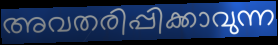
അവതരിപ്പിക്കാവുന്ന